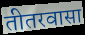
तीतरवासा